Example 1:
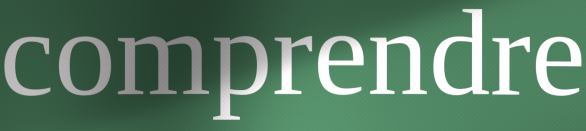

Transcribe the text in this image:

comprendre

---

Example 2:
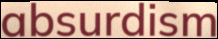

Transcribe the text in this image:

absurdism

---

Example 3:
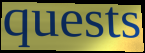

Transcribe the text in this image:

quests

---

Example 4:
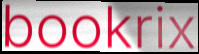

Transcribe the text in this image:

bookrix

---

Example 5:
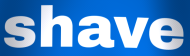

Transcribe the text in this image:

shave